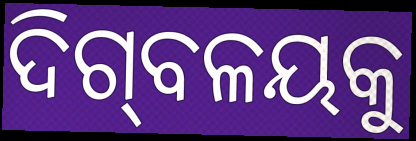
ଦିଗ୍‌ବଳୟକୁ